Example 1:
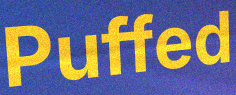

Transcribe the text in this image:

Puffed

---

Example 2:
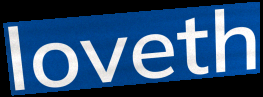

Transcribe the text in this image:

loveth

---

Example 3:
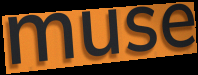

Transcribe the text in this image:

muse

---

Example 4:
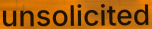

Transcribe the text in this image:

unsolicited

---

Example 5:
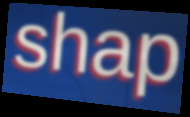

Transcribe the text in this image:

shap